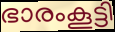
ഭാരംകൂട്ടി